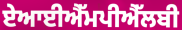
ਏਆਈਐੱਮਪੀਐੱਲਬੀ